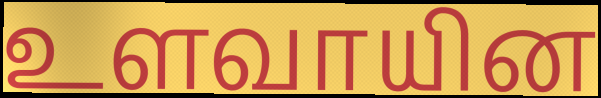
உளவாயின